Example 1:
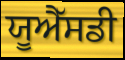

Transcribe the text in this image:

ਯੂਐੱਸਡੀ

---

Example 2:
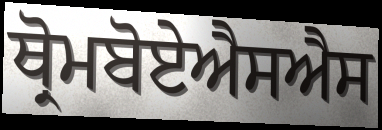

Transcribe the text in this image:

ਥ੍ਰੋਮਬੋਏਐਸਐਸ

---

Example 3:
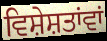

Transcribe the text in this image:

ਵਿਸ਼ੇਸ਼ਤਾਂਵਾਂ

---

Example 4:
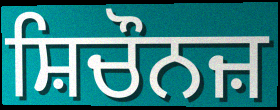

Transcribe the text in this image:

ਸ਼ਿਚੌਨਜ਼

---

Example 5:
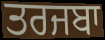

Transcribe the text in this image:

ਤਰਜਬਾ